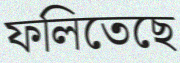
ফলিতেছে